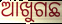
ଆଖୁଗଛ